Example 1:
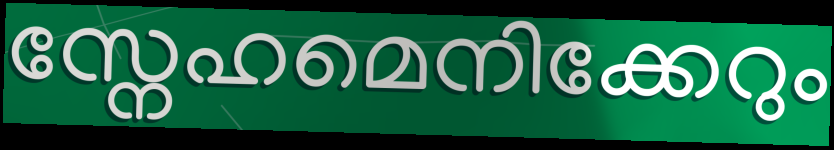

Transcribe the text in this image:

സ്നേഹമെനിക്കേറും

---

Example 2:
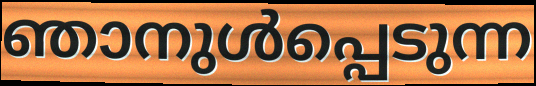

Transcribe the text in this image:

ഞാനുൾപ്പെടുന്ന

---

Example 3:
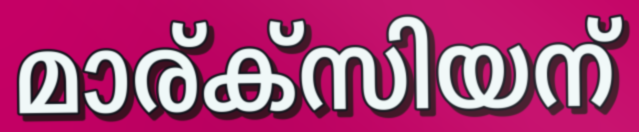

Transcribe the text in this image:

മാര്ക്സിയന്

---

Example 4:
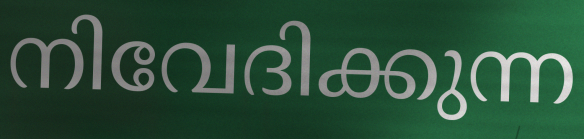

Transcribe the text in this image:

നിവേദിക്കുന്ന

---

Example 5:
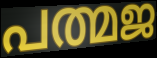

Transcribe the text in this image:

പത്മജ